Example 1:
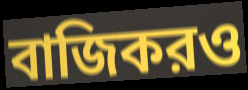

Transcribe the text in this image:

বাজিকরও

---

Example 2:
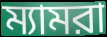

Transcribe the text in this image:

ম্যামরা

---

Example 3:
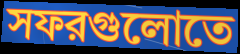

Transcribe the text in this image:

সফরগুলোতে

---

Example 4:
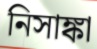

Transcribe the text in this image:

নিসাঙ্কা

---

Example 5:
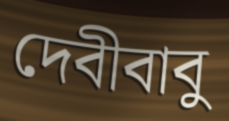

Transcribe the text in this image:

দেবীবাবু